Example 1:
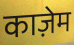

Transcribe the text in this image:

काज़ेम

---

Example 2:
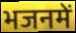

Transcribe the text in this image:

भजनमें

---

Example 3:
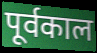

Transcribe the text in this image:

पूर्वकाल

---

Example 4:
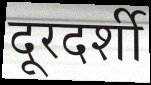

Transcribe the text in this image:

दूरदर्शी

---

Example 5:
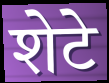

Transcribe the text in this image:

शेटे